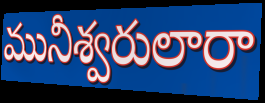
మునీశ్వరులారా